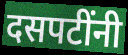
दसपटींनी